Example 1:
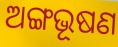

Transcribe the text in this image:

ଅଙ୍ଗଭୂଷଣ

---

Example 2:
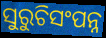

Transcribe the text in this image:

ସୁରୁଚିସଂପନ୍ନ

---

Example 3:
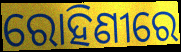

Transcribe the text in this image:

ରୋହିଣୀରେ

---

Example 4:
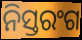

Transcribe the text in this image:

ନିସ୍ତରଂଗ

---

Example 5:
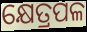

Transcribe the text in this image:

କ୍ଷେତ୍ରପଳ